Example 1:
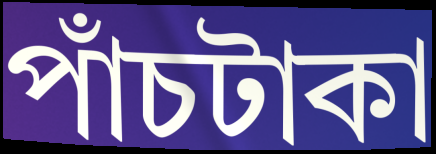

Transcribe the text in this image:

পাঁচটাকা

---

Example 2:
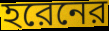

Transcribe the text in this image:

হরেনের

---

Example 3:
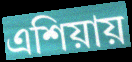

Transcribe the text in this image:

এশিয়ায়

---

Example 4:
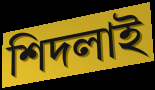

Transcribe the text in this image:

শিদলাই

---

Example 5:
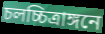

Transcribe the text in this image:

চলচ্চিত্রাঙ্গনে